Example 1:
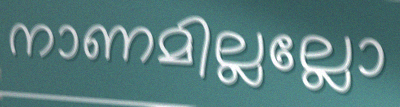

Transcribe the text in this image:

നാണമില്ലല്ലോ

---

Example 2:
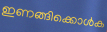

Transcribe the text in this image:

ഇണങ്ങിക്കൊൾക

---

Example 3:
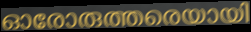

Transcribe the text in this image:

ഓരോരുത്തരെയായി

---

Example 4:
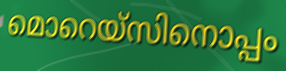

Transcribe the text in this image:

മൊറെയ്സിനൊപ്പം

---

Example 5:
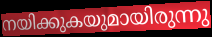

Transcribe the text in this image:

നയിക്കുകയുമായിരുന്നു